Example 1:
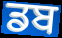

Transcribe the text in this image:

ਡਬ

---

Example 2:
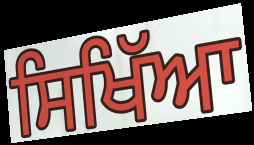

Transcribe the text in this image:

ਸਿਖਿੱਆ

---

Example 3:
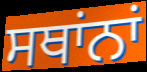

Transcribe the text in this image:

ਸਥਾਂਨਾਂ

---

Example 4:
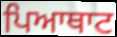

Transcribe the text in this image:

ਪਿਆਥਾਟ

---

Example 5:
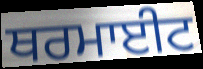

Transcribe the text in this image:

ਥਰਮਾਈਟ